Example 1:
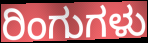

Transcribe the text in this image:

ರಿಂಗುಗಳು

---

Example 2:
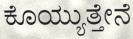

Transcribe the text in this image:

ಕೊಯ್ಯುತ್ತೇನೆ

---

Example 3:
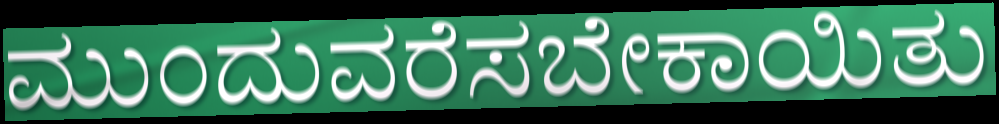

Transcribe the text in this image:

ಮುಂದುವರೆಸಬೇಕಾಯಿತು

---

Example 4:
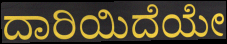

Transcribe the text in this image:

ದಾರಿಯಿದೆಯೇ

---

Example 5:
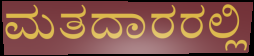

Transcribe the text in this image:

ಮತದಾರರಲ್ಲಿ